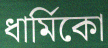
ধার্মিকো